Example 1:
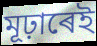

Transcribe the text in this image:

মূঢ়াৰেই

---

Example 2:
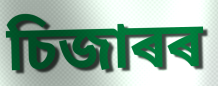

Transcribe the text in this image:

চিজাৰৰ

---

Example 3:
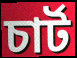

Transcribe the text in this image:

চাৰ্ট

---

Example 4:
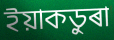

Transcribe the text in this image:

ইয়াকডুৰা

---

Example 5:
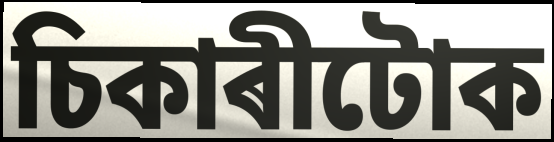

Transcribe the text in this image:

চিকাৰীটোক